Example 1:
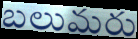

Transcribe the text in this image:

బలుమరు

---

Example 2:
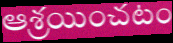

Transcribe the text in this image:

ఆశ్రయించటం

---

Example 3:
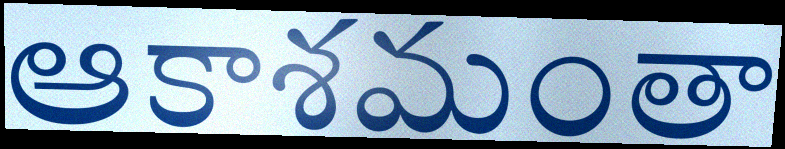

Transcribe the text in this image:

ఆకాశమంతా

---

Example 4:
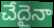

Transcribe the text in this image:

చేదైనా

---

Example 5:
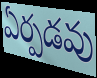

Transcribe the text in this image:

ఏర్పడవు